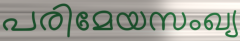
പരിമേയസംഖ്യ